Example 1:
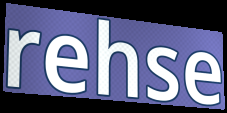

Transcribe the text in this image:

rehse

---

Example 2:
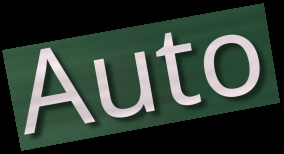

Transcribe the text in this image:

Auto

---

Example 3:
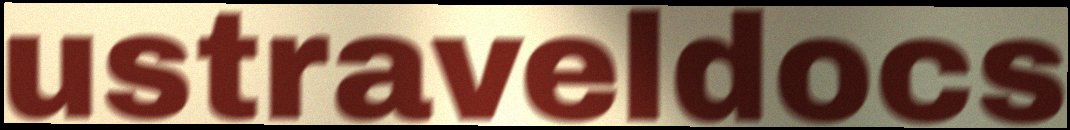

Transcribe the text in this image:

ustraveldocs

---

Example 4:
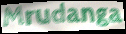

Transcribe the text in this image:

Mrudanga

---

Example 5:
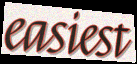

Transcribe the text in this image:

easiest